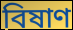
বিষাণ